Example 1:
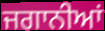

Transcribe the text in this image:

ਜਗਾਨੀਆਂ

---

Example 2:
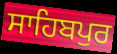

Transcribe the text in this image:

ਸਾਹਿਬਪੁਰ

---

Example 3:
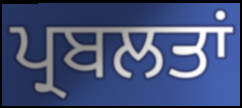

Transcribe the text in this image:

ਪ੍ਰਬਲਤਾਂ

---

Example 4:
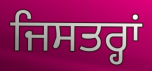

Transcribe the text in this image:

ਜਿਸਤਰ੍ਹਾਂ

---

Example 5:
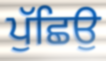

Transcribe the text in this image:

ਪੁੱਛਿਉ